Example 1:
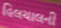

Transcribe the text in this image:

હિલચાલની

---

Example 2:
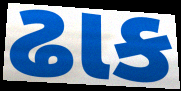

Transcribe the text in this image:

ઢાક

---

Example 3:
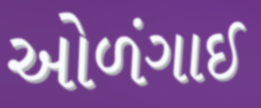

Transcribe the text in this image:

ઓળંગાઈ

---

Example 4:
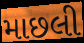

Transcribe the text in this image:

માછલી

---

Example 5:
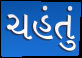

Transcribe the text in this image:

ચહંતું